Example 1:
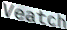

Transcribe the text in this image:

Veatch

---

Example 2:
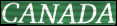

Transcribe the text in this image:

CANADA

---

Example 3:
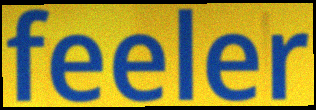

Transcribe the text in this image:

feeler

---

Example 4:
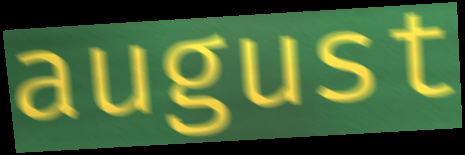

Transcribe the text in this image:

august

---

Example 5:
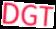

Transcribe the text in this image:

DGT